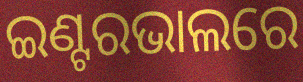
ଇଣ୍ଟରଭାଲରେ